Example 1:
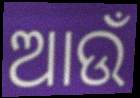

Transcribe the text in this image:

ଆଉଁ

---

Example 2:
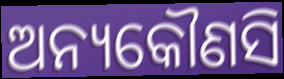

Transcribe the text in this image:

ଅନ୍ୟକୌଣସି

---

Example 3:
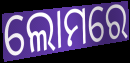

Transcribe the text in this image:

ଲୋମରେ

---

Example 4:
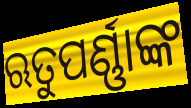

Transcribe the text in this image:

ଋତୁପର୍ଣ୍ଣାଙ୍କ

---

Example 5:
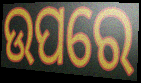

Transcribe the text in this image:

ଉପରେ